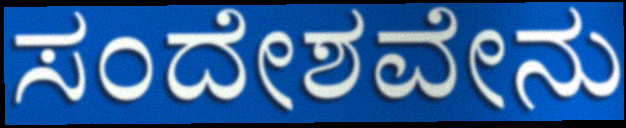
ಸಂದೇಶವೇನು